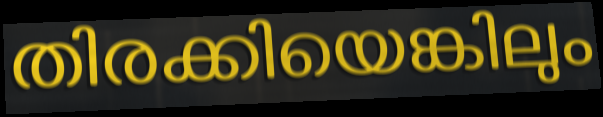
തിരക്കിയെങ്കിലും